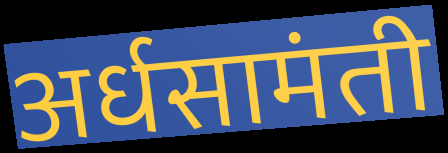
अर्धसामंती